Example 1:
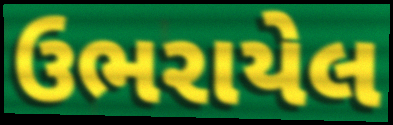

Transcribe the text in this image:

ઉભરાયેલ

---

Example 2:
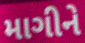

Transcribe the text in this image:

માગીને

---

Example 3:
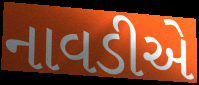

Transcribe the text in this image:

નાવડીએ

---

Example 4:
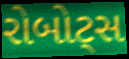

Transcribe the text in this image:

રોબોટ્સ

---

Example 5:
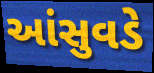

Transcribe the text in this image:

આંસુવડે